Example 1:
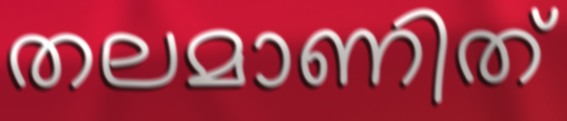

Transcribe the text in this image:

തലമാണിത്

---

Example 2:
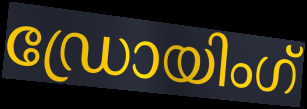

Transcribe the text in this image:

ഡ്രോയിംഗ്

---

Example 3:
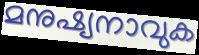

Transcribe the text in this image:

മനുഷ്യനാവുക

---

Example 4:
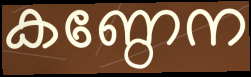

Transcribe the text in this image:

കണ്ഠേന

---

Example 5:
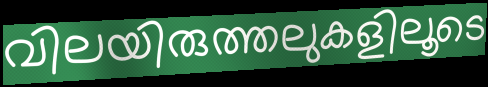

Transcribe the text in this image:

വിലയിരുത്തലുകളിലൂടെ